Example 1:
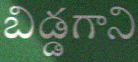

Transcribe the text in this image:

బిడ్డగాని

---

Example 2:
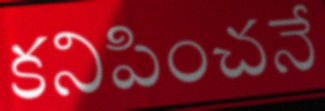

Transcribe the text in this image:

కనిపించనే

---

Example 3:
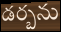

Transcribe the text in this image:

డర్బను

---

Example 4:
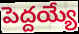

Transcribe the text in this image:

పెద్దయ్యే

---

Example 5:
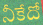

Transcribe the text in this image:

నీకేదో